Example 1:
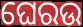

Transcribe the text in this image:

ଘେରଉ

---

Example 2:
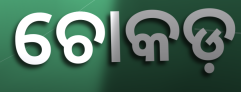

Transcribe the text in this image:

ଚୋକଡ଼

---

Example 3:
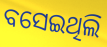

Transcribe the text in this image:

ବସେଇଥିଲି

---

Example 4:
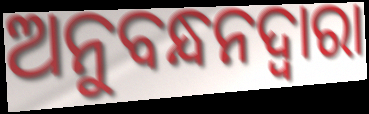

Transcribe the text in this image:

ଅନୁବନ୍ଧନଦ୍ୱାରା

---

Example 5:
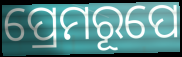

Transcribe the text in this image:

ପ୍ରେମରୂପେ